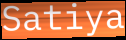
Satiya